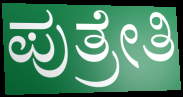
ಪುತ್ರೇತಿ